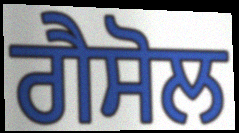
ਗੈਸੋਲ